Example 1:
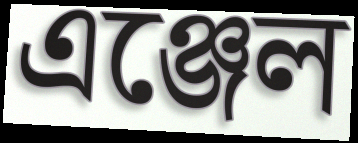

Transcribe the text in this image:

এঞ্জেল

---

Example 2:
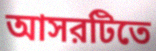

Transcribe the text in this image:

আসরটিতে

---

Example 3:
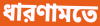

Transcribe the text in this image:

ধারণামতে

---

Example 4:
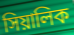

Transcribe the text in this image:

সিয়ালিক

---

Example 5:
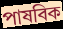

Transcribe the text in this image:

পাষবিক